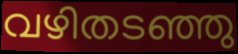
വഴിതടഞ്ഞു